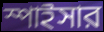
স্পাইসার